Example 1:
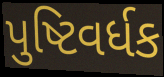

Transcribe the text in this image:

પુષ્ટિવર્ધક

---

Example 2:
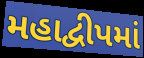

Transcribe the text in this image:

મહાદ્વીપમાં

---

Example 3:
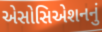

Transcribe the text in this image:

એસોસિએશનનું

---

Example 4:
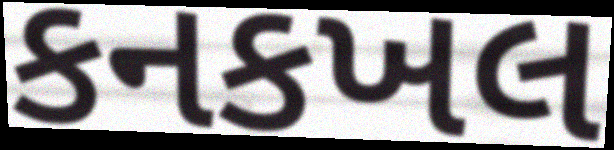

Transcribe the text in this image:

કનકખલ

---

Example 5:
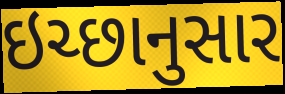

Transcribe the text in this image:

ઇચ્છાનુસાર